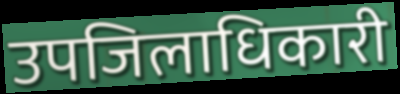
उपजिलाधिकारी